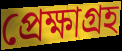
প্রেক্ষাগ্রহ